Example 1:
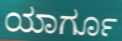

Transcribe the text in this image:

ಯಾರ್ಗೂ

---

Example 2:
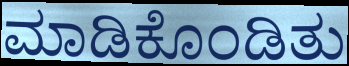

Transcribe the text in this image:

ಮಾಡಿಕೊಂಡಿತು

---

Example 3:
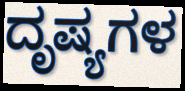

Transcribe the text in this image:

ದೃಷ್ಯಗಳ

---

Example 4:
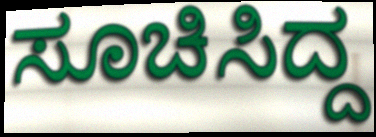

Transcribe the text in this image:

ಸೂಚಿಸಿದ್ದ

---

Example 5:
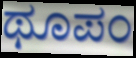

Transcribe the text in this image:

ಥೂಪಂ